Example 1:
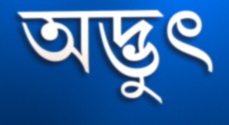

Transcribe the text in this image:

অদ্ভুৎ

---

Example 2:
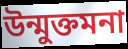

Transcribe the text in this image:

উন্মুক্তমনা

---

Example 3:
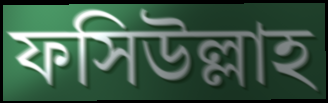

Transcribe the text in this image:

ফসিউল্লাহ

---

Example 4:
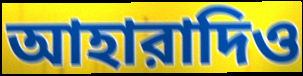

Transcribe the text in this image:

আহারাদিও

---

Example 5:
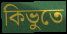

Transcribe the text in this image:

কিভুতে